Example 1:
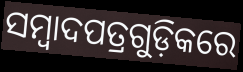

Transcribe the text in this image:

ସମ୍ୱାଦପତ୍ରଗୁଡ଼ିକରେ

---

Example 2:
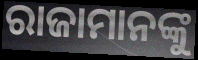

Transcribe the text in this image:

ରାଜାମାନଙ୍କୁ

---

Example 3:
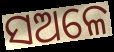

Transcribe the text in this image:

ସଅଳେ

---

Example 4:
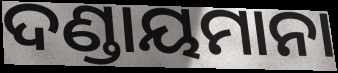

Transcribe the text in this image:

ଦଣ୍ଡାୟମାନା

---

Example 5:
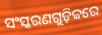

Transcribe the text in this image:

ସଂସ୍କରଣଗୁଡ଼ିକରେ